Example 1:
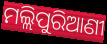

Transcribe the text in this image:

ମଲ୍ଲିପୁରିଆଣୀ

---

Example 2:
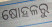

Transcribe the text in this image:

ଷୋହଳରୁ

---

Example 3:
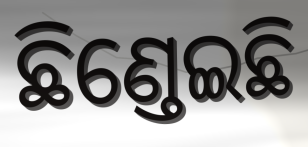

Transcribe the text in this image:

ଛିଣ୍ଡେଇଛି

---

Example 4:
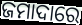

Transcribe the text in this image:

ଜମାଦାରେ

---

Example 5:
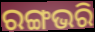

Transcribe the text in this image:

ରଙ୍ଗଭରି